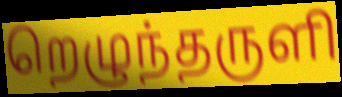
றெழுந்தருளி